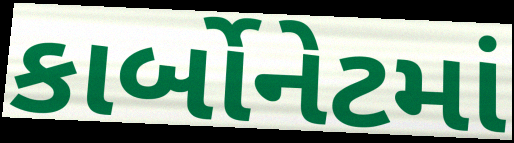
કાર્બોનેટમાં